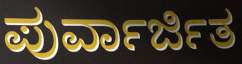
ಪುರ್ವಾರ್ಜಿತ